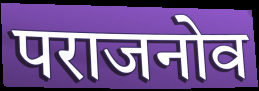
पराजनोव